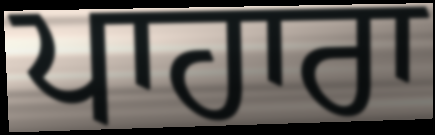
ਪਾਹਾਰਾ